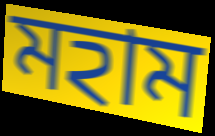
মহাম